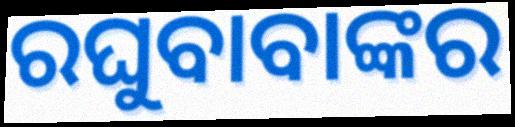
ରଘୁବାବାଙ୍କର